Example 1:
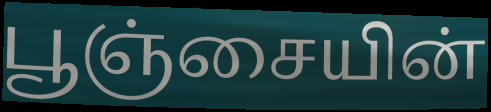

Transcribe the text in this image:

பூஞ்சையின்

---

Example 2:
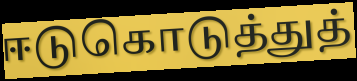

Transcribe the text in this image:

ஈடுகொடுத்துத்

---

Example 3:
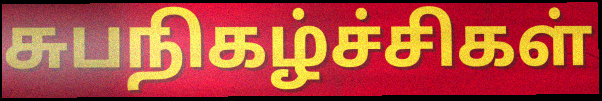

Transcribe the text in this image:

சுபநிகழ்ச்சிகள்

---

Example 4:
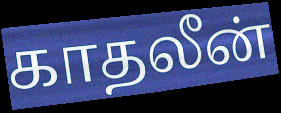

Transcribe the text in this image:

காதலீன்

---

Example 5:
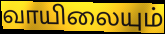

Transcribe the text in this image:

வாயிலையும்